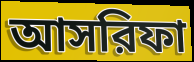
আসরিফা